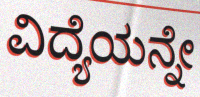
ವಿದ್ಯೆಯನ್ನೇ